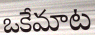
ఒకేమాట